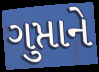
ગુપ્તાને